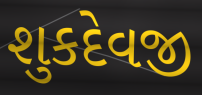
શુકદેવજી